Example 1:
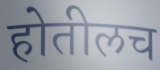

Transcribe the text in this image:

होतीलच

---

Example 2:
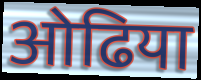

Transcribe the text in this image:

ओढिया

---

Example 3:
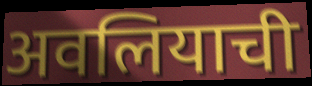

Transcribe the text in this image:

अवलियाची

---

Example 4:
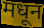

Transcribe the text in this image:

मधून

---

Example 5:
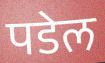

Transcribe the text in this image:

पडेल